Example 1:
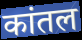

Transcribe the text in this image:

कांतल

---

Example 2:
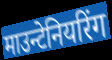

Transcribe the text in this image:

माउन्टेनियरिंग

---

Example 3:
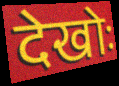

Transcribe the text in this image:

देखोः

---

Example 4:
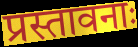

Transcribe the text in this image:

प्रस्तावनाः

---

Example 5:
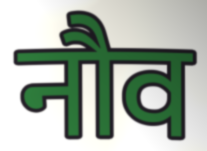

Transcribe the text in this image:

नौव